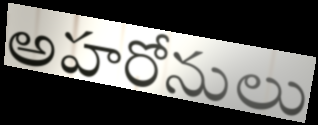
అహరోనులు